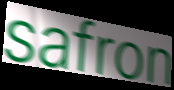
safron